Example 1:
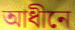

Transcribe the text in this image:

আধীনে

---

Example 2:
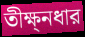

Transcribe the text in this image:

তীক্ষ্নধার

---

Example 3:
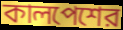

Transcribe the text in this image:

কালপেশের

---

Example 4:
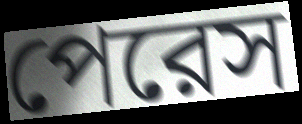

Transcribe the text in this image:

পেরেস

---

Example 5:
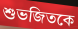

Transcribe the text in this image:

শুভজিতকে